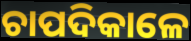
ଚାପଦିକାଳେ